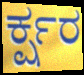
ರ್ಕ್ಷರ